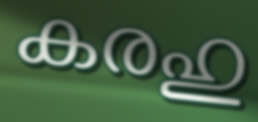
കരഹു